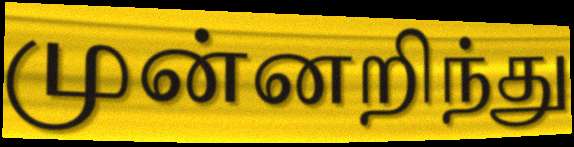
முன்னறிந்து